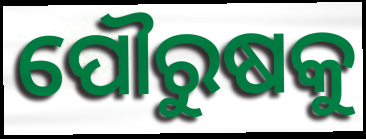
ପୌରୁଷକୁ